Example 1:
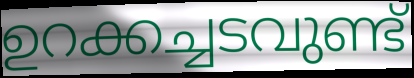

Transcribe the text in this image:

ഉറക്കച്ചടവുണ്ട്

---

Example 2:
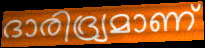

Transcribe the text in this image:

ദാരിദ്ര്യമാണ്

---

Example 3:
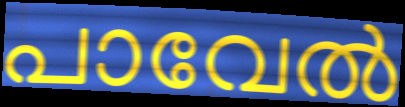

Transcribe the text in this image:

പാവേൽ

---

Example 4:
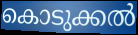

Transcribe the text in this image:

കൊടുക്കൽ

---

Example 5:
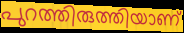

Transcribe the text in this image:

പുറത്തിരുത്തിയാണ്